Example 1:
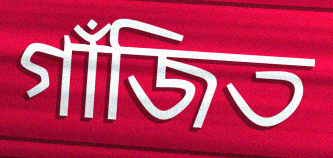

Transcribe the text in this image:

গাঁজিত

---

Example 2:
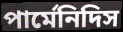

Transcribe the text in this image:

পার্মেনিদিস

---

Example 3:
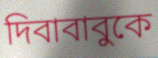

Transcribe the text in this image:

দিবাবাবুকে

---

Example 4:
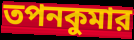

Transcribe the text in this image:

তপনকুমার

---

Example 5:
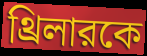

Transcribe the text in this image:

থ্রিলারকে